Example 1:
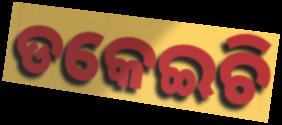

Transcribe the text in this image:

ଡକେଇଚି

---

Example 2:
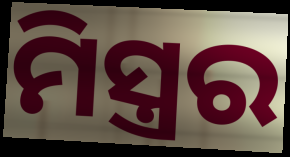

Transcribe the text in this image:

ମିସ୍ତ୍ରର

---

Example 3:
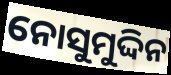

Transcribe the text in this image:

ନୋସୁମୁଦ୍ଦିନ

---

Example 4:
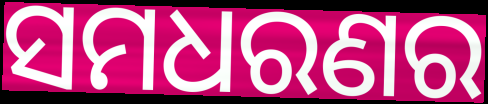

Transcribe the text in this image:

ସମଧରଣର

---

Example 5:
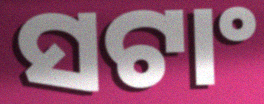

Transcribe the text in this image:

ସଟାଂ